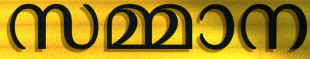
സമ്മാന